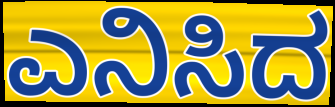
ಎನಿಸಿದ